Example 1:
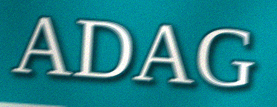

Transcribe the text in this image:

ADAG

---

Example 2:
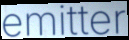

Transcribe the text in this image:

emitter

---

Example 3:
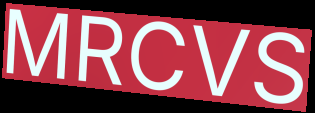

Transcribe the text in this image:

MRCVS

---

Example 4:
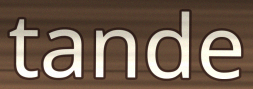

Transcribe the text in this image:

tande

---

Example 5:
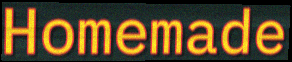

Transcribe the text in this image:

Homemade